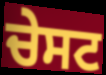
ਚੇਸਟ